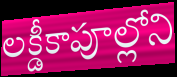
లక్డీకాపూల్లోని